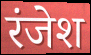
रंजेश